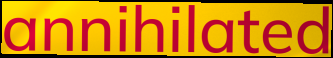
annihilated